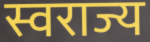
स्वराज्य